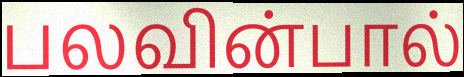
பலவின்பால்